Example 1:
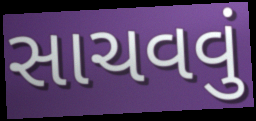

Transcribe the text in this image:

સાચવવું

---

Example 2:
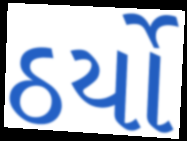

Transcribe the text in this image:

ઠર્યો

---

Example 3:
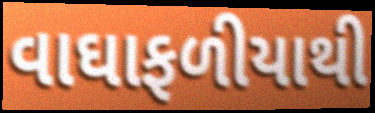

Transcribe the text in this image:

વાઘાફળીયાથી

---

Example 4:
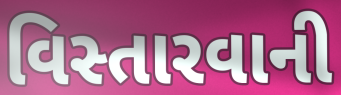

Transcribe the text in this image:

વિસ્તારવાની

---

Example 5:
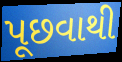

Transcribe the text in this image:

પૂછવાથી